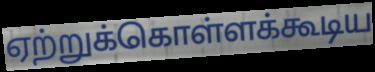
ஏற்றுக்கொள்ளக்கூடிய